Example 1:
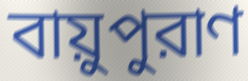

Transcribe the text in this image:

বায়ুপুরাণ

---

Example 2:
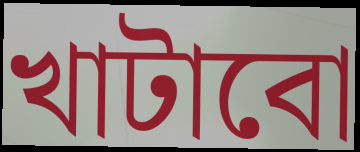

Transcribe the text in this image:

খাটাবো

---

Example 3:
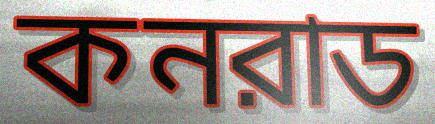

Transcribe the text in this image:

কনরাড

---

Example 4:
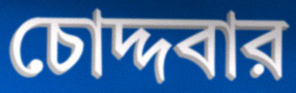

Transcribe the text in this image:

চোদ্দবার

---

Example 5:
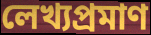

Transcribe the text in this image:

লেখ্যপ্রমাণ